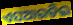
ଏସଆରଡିଇ